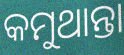
କମୁଥାନ୍ତା